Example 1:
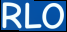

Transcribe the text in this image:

RLO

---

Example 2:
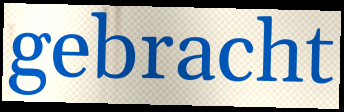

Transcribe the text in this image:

gebracht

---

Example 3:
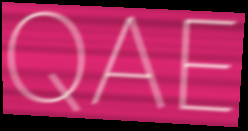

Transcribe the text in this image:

QAE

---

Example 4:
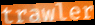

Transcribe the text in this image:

trawler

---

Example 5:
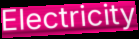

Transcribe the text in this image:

Electricity